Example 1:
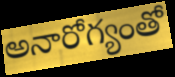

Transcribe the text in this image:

అనారోగ్యంతో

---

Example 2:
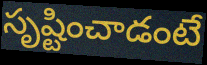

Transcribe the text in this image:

సృష్టించాడంటే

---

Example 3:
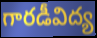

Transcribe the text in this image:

గారడీవిద్య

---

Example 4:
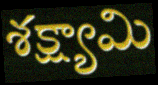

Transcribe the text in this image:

శక్ష్యామి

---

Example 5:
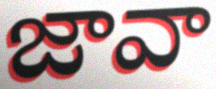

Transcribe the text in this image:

జావా